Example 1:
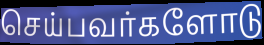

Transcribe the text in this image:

செய்பவர்களோடு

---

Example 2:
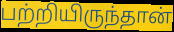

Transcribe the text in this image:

பற்றியிருந்தான்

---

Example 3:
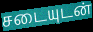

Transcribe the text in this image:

சடையுடன்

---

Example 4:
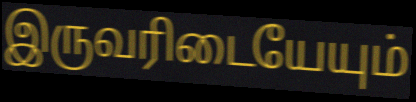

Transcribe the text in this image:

இருவரிடையேயும்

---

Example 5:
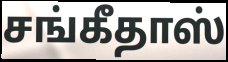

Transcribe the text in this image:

சங்கீதாஸ்